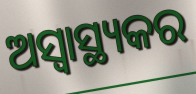
ଅସ୍ବାସ୍ଥ୍ୟକର